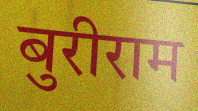
बुरीराम